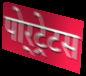
पोर्ट्रेटस